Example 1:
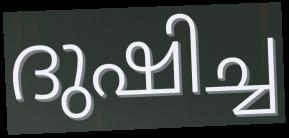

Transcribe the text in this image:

ദുഷിച്ച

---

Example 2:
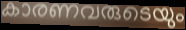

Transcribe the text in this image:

കാരണവരുടെയും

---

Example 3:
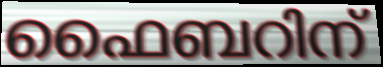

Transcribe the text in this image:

ഫൈബറിന്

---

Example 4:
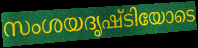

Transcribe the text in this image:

സംശയദൃഷ്ടിയോടെ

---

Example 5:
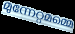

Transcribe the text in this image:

മുന്നേറ്റമമ്മെ